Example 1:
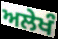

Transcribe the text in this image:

ਅਲੇਖੰ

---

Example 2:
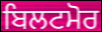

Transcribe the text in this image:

ਬਿਲਟਮੋਰ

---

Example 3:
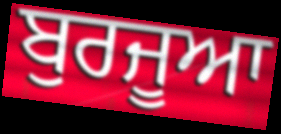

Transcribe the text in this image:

ਬੁਰਜੂਆ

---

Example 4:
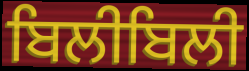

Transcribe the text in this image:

ਬਿਲੀਬਿਲੀ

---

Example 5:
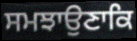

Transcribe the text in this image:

ਸਮਝਾਉਣਾਕਿ